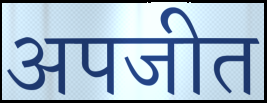
अपजीत